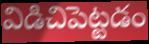
విడిచిపెట్టడం